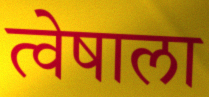
त्वेषाला